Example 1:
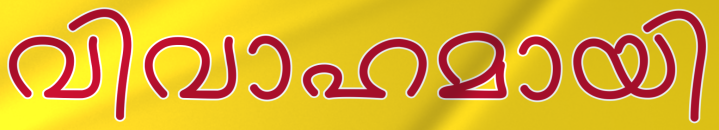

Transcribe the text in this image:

വിവാഹമായി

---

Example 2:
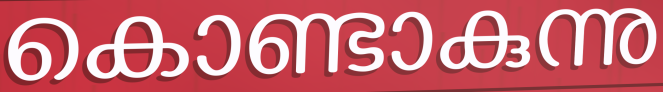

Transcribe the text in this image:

കൊണ്ടാകുന്നു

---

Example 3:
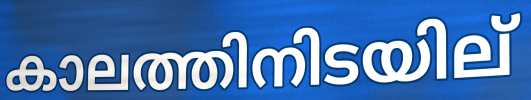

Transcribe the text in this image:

കാലത്തിനിടയില്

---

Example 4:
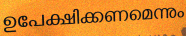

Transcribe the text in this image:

ഉപേക്ഷിക്കണമെന്നും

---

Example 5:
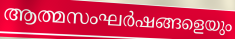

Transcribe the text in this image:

ആത്മസംഘർഷങ്ങളെയും